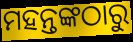
ମହନ୍ତଙ୍କଠାରୁ